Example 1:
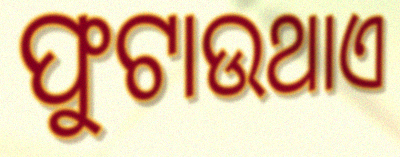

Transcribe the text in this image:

ଫୁଟାଉଥାଏ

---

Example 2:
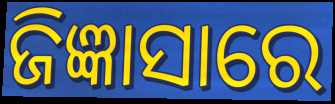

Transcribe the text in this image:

ଜିଜ୍ଞାସାରେ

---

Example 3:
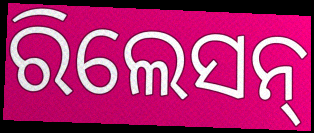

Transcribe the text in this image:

ରିଲେସନ୍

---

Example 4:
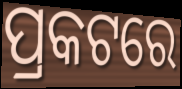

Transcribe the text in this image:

ପ୍ରକଟରେ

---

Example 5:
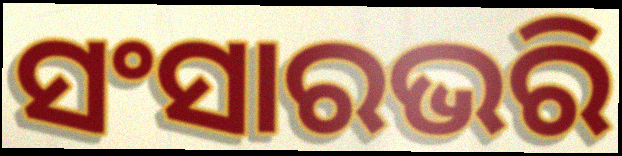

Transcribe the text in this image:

ସଂସାରଭରି